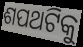
ଶପଥଟିକୁ